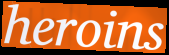
heroins